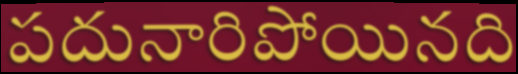
పదునారిపోయినది